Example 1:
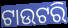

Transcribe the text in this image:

ଟାଉଟରି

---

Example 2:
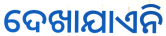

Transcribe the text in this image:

ଦେଖାଯାଏନି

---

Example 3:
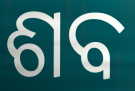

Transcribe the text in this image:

ଶବ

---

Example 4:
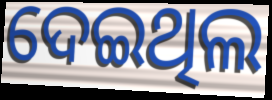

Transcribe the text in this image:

ଦେଇଥିଲ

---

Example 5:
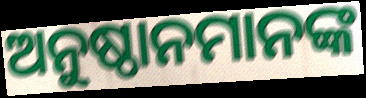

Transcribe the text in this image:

ଅନୁଷ୍ଠାନମାନଙ୍କ